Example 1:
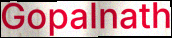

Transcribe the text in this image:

Gopalnath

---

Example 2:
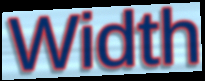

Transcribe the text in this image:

Width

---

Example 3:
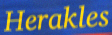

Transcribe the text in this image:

Herakles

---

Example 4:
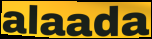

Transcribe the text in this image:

alaada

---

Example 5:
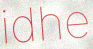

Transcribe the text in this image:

idhe